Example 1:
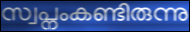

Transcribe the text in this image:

സ്വപ്നംകണ്ടിരുന്നു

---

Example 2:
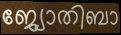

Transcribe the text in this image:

ജ്യോതിബാ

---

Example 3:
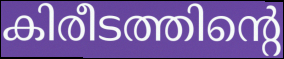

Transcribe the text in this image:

കിരീടത്തിന്റെ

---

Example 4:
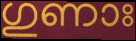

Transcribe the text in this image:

ഗുണാഃ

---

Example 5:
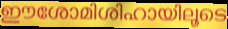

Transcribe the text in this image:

ഈശോമിശിഹായിലൂടെ